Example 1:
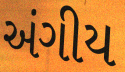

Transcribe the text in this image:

અંગીય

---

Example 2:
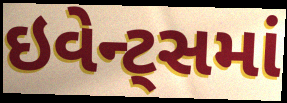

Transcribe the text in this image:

ઇવેન્ટ્સમાં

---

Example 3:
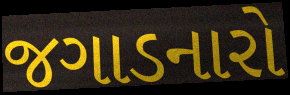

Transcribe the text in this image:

જગાડનારો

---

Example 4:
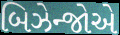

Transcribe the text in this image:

બિઝેન્જોએ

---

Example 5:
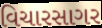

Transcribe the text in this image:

વિચારસાગર